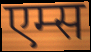
एम्स